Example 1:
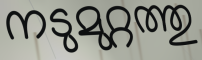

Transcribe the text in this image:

നടുമുറ്റത്തു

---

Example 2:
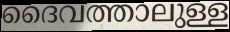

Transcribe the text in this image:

ദൈവത്താലുള്ള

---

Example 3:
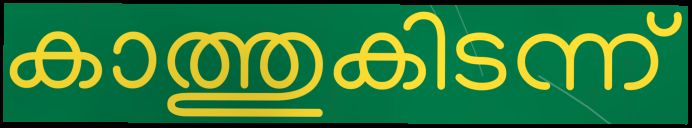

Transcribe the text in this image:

കാത്തുകിടന്ന്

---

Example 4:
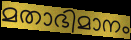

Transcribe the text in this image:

മതാഭിമാനം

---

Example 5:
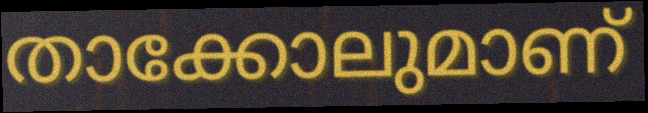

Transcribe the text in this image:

താക്കോലുമാണ്